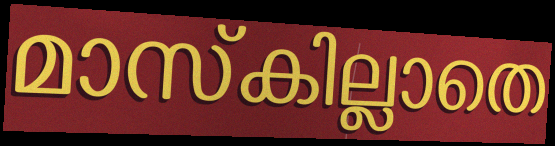
മാസ്‌കില്ലാതെ